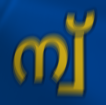
ന്വ്